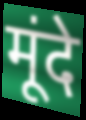
मूंदे